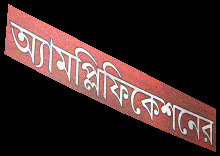
অ্যামপ্লিফিকেশনের